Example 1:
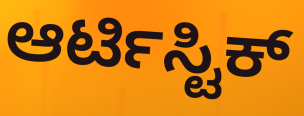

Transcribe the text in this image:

ಆರ್ಟಿಸ್ಟಿಕ್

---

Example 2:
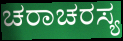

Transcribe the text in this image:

ಚರಾಚರಸ್ಯ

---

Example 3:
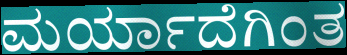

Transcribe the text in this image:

ಮರ್ಯಾದೆಗಿಂತ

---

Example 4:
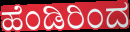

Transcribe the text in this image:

ಹೆಂಡಿರಿಂದ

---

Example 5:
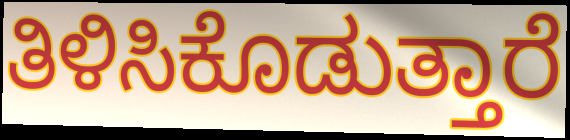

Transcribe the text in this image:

ತಿಳಿಸಿಕೊಡುತ್ತಾರೆ